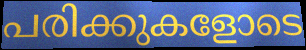
പരിക്കുകളോടെ